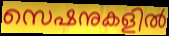
സെഷനുകളിൽ